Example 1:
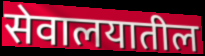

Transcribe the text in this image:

सेवालयातील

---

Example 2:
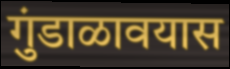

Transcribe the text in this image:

गुंडाळावयास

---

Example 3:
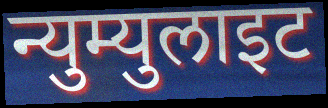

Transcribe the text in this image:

न्युम्युलाइट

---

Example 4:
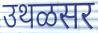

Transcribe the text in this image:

उथळसर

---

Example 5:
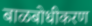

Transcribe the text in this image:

बाळबोधीकरण